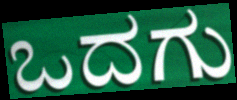
ಒದಗು